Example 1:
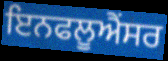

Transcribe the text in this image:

ਇਨਫਲੂਐਂਸਰ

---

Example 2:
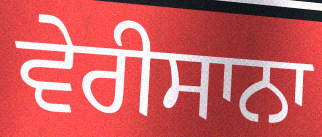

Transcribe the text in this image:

ਵੇਰੀਸਾਨਾ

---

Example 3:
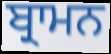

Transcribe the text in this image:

ਬ੍ਰਾਮਨ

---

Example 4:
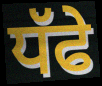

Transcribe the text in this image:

ਧੱਫੇ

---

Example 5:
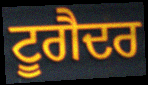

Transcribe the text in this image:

ਟੂਗੈਦਰ